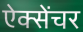
ऐक्सेंचर